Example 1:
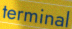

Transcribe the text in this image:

terminal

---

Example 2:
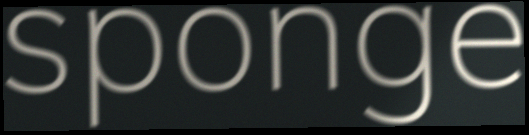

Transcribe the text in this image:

sponge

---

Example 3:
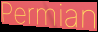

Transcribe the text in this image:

Permian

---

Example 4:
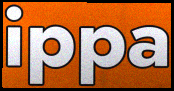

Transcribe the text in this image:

ippa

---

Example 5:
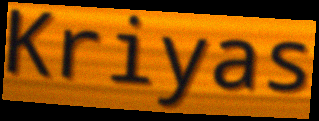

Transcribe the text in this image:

Kriyas